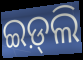
ଇଡ଼୍‌ଲି